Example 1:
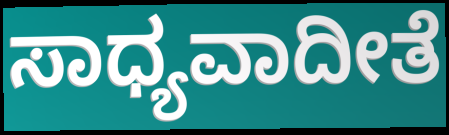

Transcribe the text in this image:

ಸಾಧ್ಯವಾದೀತೆ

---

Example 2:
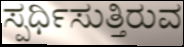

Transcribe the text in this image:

ಸ್ಪರ್ಧಿಸುತ್ತಿರುವ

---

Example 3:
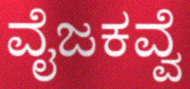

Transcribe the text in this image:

ವೈಜಕವ್ವೆ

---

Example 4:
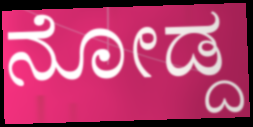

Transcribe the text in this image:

ನೋಡ್ದ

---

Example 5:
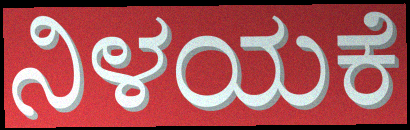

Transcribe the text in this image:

ನಿಳಯಕೆ